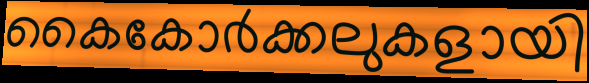
കൈകോർക്കലുകളായി